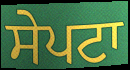
ਸੇਪਟਾ